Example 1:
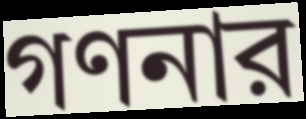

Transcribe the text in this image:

গণনার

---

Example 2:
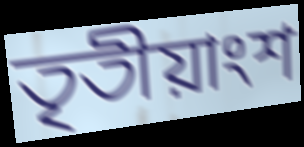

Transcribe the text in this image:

তৃতীয়াংশ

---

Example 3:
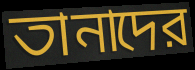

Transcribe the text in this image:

তানাদের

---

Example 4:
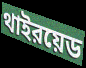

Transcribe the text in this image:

থাইরয়েড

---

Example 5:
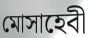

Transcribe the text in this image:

মোসাহেবী